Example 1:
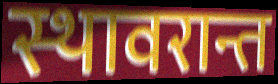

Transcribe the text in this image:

स्थावरान्त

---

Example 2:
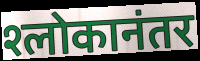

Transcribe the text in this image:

श्लोकानंतर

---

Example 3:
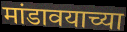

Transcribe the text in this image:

मांडावयाच्या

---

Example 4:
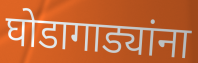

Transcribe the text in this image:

घोडागाड्यांना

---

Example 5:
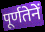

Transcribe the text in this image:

पूर्णतेनें